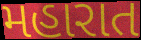
મહારાત